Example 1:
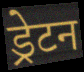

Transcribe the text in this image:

ड्रेटन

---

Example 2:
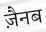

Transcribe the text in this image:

ज़ैनब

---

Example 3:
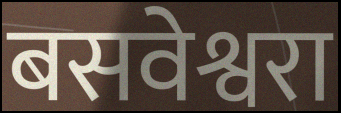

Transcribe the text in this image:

बसवेश्वरा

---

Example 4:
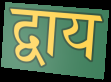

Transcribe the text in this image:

द्वाय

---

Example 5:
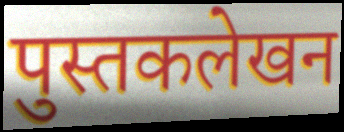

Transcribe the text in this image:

पुस्तकलेखन